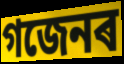
গজেনৰ